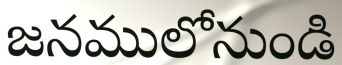
జనములోనుండి